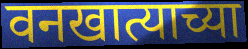
वनखात्याच्या